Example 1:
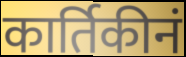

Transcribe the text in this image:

कार्तिकीनं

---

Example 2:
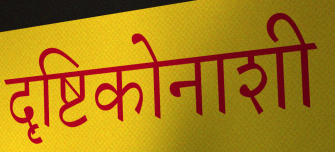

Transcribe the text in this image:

दृष्टिकोनाशी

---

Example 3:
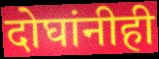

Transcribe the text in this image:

दोघांनीही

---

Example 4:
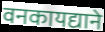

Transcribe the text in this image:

वनकायद्याने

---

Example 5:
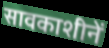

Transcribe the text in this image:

सावकाशीनें